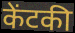
केंटकी